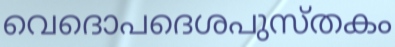
വെദൊപദെശപുസ്തകം